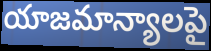
యాజమాన్యాలపై